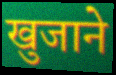
खुजाने